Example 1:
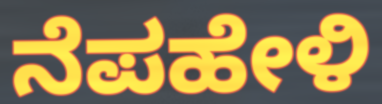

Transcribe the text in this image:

ನೆಪಹೇಳಿ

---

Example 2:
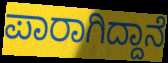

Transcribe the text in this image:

ಪಾರಾಗಿದ್ದಾನೆ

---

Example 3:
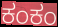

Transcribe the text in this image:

ಕಂಕಂ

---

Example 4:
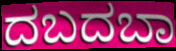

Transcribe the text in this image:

ದಬದಬಾ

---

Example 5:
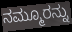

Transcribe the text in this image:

ನಮ್ಮೂರನ್ನು